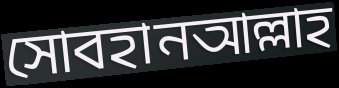
সোবহানআল্লাহ